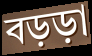
বড়ড়া